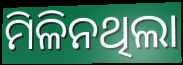
ମିଳିନଥିଲା